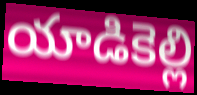
యాడికెల్లి